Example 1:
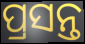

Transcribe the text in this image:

ପ୍ରସନ୍ତ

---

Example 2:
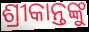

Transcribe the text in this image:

ଶ୍ରୀକାନ୍ତଙ୍କୁ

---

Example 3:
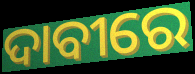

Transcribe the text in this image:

ଦାବୀରେ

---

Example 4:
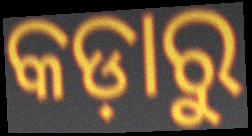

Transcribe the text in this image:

କଡ଼ାରୁ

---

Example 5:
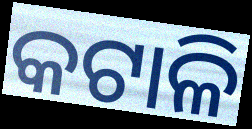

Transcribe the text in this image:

କଟାଳି